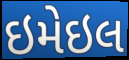
ઇમેઇલ